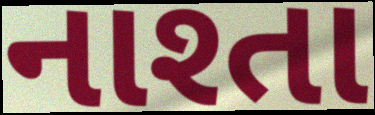
નાશ્તા